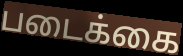
படைக்கை